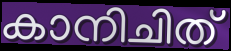
കാനിചിത്